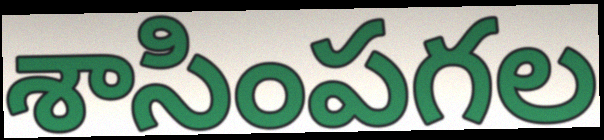
శాసింపగల